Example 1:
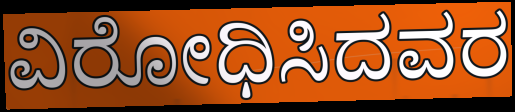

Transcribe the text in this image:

ವಿರೋಧಿಸಿದವರ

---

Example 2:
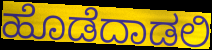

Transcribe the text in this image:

ಹೊಡೆದಾಡಲಿ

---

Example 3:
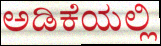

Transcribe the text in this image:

ಅಡಿಕೆಯಲ್ಲಿ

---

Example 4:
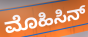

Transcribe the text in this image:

ಮೊಹಿಸಿನ್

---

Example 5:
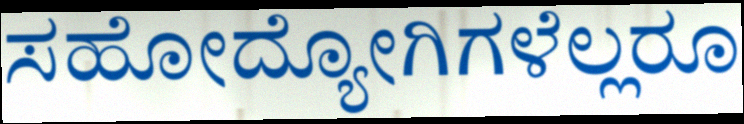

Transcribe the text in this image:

ಸಹೋದ್ಯೋಗಿಗಳೆಲ್ಲರೂ